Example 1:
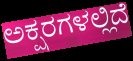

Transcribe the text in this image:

ಅಕ್ಷರಗಳಲ್ಲಿದೆ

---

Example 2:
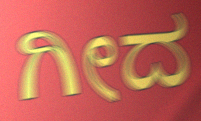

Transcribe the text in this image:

ಗೀದ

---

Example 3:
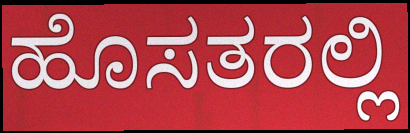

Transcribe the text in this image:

ಹೊಸತರಲ್ಲಿ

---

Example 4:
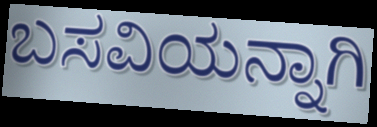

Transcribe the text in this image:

ಬಸವಿಯನ್ನಾಗಿ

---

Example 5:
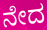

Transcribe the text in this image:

ನೇದ